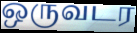
ஒருவடர